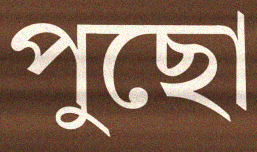
পুছো